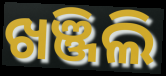
ଖଞ୍ଜିଲି